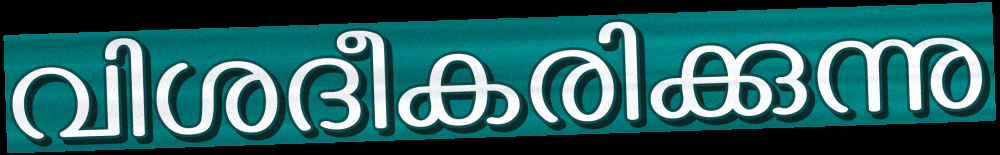
വിശദീകരിക്കുന്നു